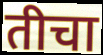
तीचा